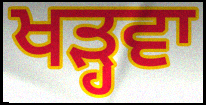
ਖੜ੍ਹਵਾ